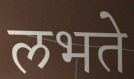
लभते